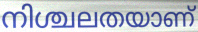
നിശ്ചലതയാണ്